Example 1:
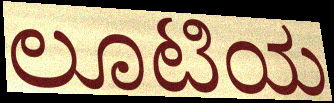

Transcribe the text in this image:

ಲೂಟಿಯ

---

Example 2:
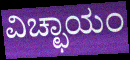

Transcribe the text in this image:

ವಿಚ್ಛಾಯಂ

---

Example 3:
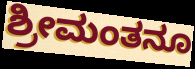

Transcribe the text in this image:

ಶ್ರೀಮಂತನೂ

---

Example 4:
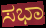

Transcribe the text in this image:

ಸಭಾ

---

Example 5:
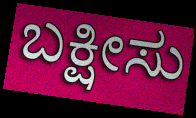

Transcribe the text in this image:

ಬಕ್ಷೀಸು